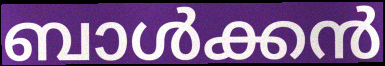
ബാൾക്കൻ